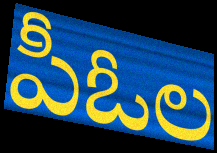
పీఓల